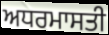
ਅਧਰਮਾਸਤੀ